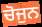
ਚੋਜੁਨ